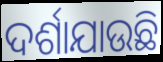
ଦର୍ଶାଯାଉଛି